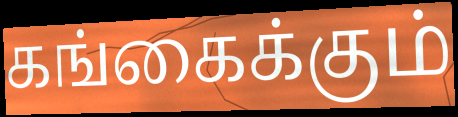
கங்கைக்கும்